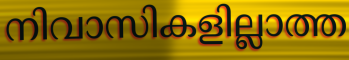
നിവാസികളില്ലാത്ത